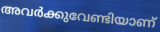
അവർക്കുവേണ്ടിയാണ്